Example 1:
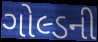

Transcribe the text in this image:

ગોલ્ડની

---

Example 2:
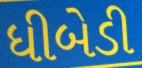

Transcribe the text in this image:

ધીબેડી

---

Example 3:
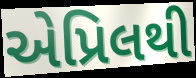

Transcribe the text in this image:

એપ્રિલથી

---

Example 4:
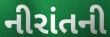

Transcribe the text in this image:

નીરાંતની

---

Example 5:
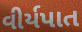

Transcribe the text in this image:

વીર્યપાત